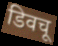
डिवचू